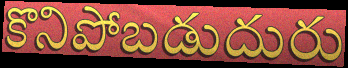
కొనిపోబడుదురు